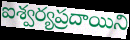
ఐశ్వర్యప్రదాయిని